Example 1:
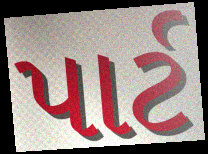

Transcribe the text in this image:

પાર્ટ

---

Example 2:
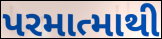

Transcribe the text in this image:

પરમાત્માથી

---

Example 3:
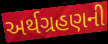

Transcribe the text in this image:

અર્થગ્રહણની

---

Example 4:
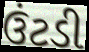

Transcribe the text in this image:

ઉંટડી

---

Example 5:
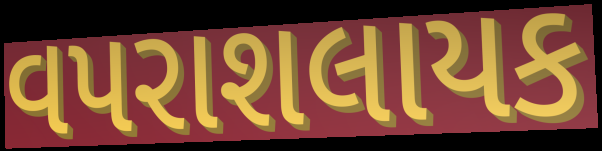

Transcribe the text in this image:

વપરાશલાયક